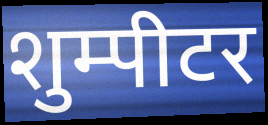
शुम्पीटर